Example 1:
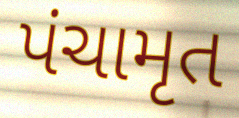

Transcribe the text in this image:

પંચામૃત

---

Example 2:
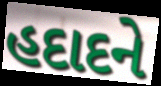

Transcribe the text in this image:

હદાદને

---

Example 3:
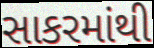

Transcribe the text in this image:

સાકરમાંથી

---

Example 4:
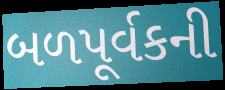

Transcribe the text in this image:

બળપૂર્વકની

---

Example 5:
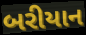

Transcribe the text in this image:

બરીયાન